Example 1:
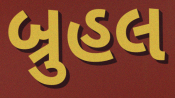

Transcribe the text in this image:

બ્રુહલ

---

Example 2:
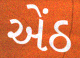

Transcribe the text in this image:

એંઠ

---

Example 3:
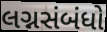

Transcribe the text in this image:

લગ્નસંબંધો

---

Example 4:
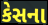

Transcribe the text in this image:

કેસના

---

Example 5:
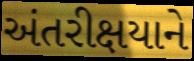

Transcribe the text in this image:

અંતરીક્ષયાને